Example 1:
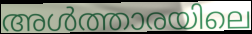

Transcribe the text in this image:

അൾത്താരയിലെ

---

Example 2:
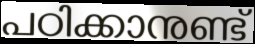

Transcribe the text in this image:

പഠിക്കാനുണ്ട്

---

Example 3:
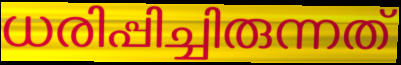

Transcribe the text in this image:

ധരിപ്പിച്ചിരുന്നത്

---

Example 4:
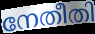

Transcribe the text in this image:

നേതീതി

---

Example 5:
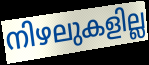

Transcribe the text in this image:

നിഴലുകളില്ല